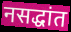
नसद्धांत